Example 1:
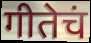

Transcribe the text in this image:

गीतेचं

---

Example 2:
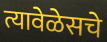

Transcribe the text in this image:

त्यावेळेसचे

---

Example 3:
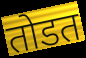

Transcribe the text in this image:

तोडत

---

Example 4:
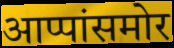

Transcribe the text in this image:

आप्पांसमोर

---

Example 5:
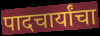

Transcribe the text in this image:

पादचार्यांचा